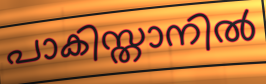
പാകിസ്താനിൽ